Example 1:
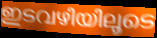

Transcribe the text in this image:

ഇടവഴിയിലൂടെ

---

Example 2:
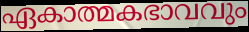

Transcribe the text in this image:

ഏകാത്മകഭാവവും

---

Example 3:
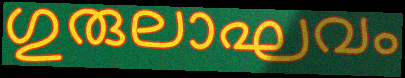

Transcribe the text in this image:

ഗുരുലാഘവം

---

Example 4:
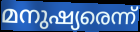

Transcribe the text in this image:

മനുഷ്യരെന്ന്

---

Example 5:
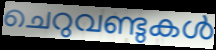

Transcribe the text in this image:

ചെറുവണ്ടുകൾ